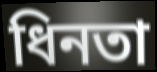
ধিনতা